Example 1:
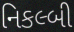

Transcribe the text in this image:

નિકલ્બી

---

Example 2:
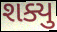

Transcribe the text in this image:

શક્યુ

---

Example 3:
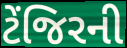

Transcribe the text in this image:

ટેંજિરની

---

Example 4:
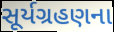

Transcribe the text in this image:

સૂર્યગ્રહણના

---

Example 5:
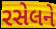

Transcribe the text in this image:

રસેલને